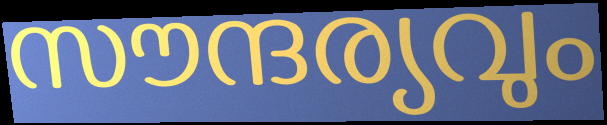
സൗന്ദര്യവും